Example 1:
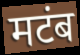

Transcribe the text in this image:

मटंब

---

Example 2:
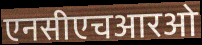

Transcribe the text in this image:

एनसीएचआरओ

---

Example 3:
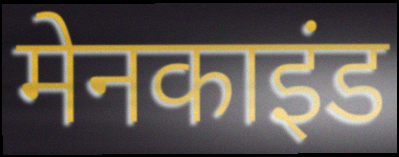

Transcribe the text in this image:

मेनकाइंड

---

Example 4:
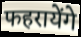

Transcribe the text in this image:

फहरायेंगे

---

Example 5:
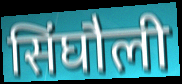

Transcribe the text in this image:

सिंघौली